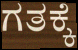
ಗತಕ್ಕೆ